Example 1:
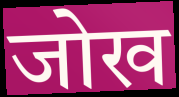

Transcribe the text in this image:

जोख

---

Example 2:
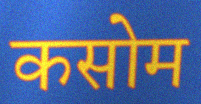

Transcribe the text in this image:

कसोम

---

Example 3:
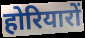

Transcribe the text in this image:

होरियारों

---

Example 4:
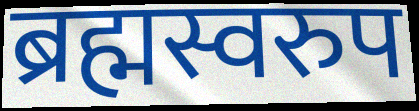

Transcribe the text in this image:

ब्रह्मस्वरुप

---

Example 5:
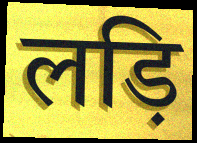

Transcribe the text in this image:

लड़ि